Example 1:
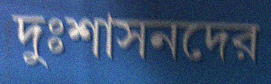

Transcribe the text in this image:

দুঃশাসনদের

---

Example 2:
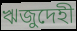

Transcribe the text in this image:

ঋজুদেহী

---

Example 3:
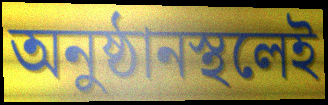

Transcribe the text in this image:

অনুষ্ঠানস্থলেই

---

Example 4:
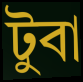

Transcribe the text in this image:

টুবা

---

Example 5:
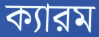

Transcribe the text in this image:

ক্যারম